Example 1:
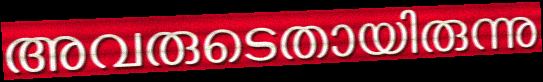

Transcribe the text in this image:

അവരുടെതായിരുന്നു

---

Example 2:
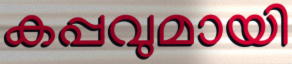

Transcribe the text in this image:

കപ്പവുമായി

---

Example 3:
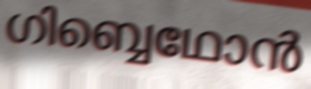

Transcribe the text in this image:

ഗിബ്ബെഥോൻ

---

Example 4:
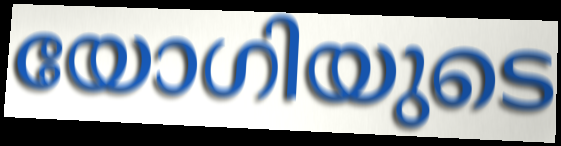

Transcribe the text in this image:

യോഗിയുടെ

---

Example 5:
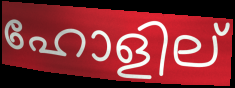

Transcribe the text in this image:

ഹോളില്